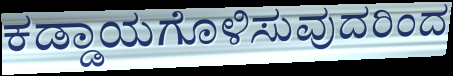
ಕಡ್ಡಾಯಗೊಳಿಸುವುದರಿಂದ